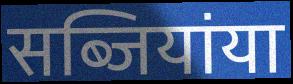
सब्जियांया